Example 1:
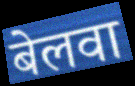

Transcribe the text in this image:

बेलवा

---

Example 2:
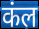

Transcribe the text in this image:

कंल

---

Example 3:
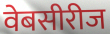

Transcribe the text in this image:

वेबसीरीज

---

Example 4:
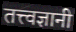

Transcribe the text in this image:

तत्त्वज्ञानी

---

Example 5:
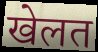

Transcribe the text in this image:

खेलत